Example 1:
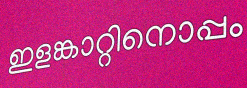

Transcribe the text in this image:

ഇളങ്കാറ്റിനൊപ്പം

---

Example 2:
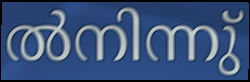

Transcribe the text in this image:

ൽനിന്നു്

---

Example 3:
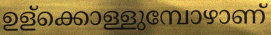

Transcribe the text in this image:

ഉള്ക്കൊള്ളുമ്പോഴാണ്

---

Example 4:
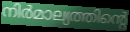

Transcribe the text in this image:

നിർമാല്യത്തിന്റെ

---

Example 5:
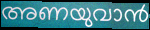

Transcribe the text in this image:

അണയുവാൻ